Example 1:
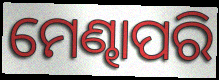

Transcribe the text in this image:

ମେଣ୍ଢାପରି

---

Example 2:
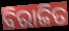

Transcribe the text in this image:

ବିରାଜିତ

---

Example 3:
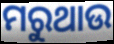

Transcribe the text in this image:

ମରୁଥାଉ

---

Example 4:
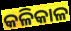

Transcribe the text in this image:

କଳିକାଳ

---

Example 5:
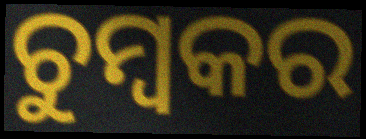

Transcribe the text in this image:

ଚୁମ୍ବକର